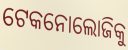
ଟେକନୋଲୋଜିକୁ